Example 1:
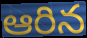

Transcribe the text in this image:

ఆరిన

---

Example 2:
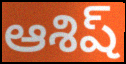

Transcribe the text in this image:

ఆశిష్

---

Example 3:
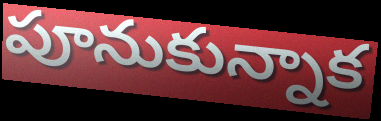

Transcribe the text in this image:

పూనుకున్నాక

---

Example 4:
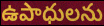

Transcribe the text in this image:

ఉపాధులను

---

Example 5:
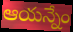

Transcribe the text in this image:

ఆయన్నేం